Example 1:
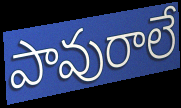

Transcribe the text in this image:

పావురాలే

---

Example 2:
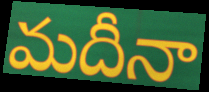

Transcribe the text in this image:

మదీనా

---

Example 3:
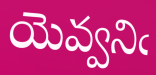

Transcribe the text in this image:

యెవ్వనిఁ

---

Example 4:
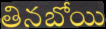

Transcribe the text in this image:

తినబోయి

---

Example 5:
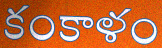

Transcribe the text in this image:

కంకాళం